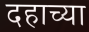
दहाच्या